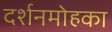
दर्शनमोहका